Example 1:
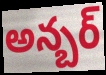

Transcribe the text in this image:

అన్బర్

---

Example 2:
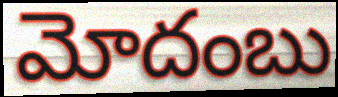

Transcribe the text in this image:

మోదంబు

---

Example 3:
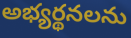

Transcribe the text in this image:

అభ్యర్థనలను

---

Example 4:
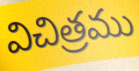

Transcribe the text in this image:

విచిత్రము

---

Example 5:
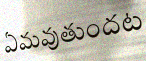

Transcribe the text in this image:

ఏమవుతుందట